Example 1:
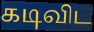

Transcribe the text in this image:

கடிவிட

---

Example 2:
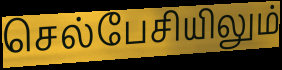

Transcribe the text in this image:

செல்பேசியிலும்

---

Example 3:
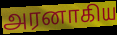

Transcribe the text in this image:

அரனாகிய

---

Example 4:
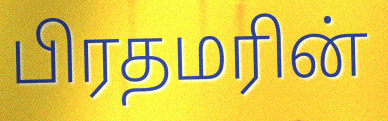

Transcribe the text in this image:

பிரதமரின்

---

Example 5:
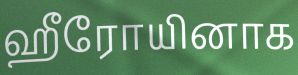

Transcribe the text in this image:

ஹீரோயினாக